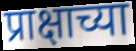
प्राक्षाच्या